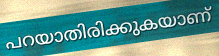
പറയാതിരിക്കുകയാണ്